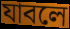
যাবলে